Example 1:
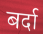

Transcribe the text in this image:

बर्दा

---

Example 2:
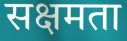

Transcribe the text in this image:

सक्षमता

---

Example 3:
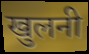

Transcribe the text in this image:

खुलनी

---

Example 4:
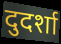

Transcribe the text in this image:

दुदर्शा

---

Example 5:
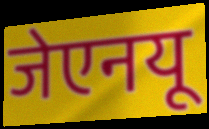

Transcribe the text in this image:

जेएनयू